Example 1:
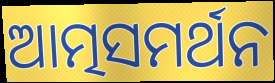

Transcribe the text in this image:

ଆତ୍ମସମର୍ଥନ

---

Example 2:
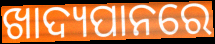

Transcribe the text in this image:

ଖାଦ୍ୟପାନରେ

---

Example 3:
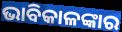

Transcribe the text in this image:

ଭାବିକାଳଙ୍କାର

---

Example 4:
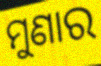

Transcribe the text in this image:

ମୁଣାର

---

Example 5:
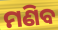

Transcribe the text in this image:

ମଣିବ